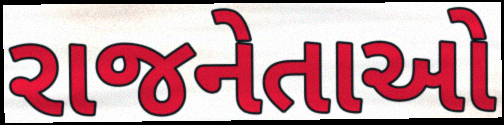
રાજનેતાઓ